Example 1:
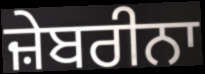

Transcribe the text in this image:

ਜ਼ੇਬਰੀਨਾ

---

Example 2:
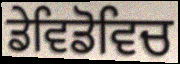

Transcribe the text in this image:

ਡੇਵਿਡੋਵਿਚ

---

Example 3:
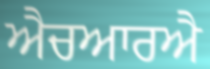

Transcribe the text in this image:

ਐਚਆਰਐ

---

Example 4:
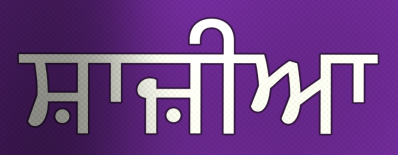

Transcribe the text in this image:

ਸ਼ਾਜ਼ੀਆ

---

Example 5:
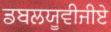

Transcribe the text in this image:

ਡਬਲਯੂਵੀਜੀਏ